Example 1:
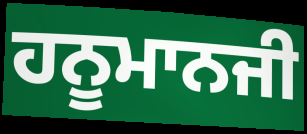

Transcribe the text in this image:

ਹਨੂਮਾਨਜੀ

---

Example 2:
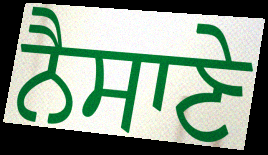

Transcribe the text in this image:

ਨੈਸਾਣੇ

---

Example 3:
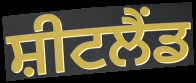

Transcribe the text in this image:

ਸ਼ੀਟਲੈਂਡ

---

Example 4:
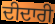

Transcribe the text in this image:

ਦੀਦਾਰੀ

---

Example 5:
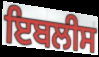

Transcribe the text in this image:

ਇਬਲੀਸ